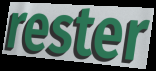
rester